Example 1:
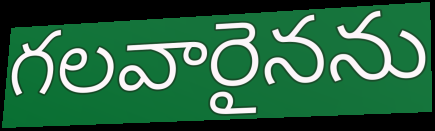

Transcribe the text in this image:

గలవారైనను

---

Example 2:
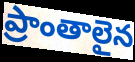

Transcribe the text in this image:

ప్రాంతాలైన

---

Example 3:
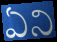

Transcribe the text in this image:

ఏని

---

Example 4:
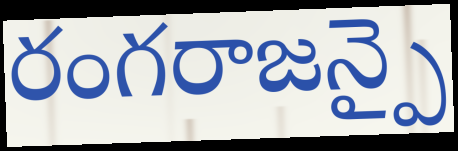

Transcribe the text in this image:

రంగరాజన్పై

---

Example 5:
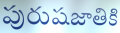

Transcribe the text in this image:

పురుషజాతికి